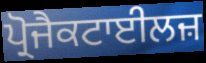
ਪ੍ਰੋਜੈਕਟਾਈਲਜ਼